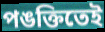
পঙক্তিতেই